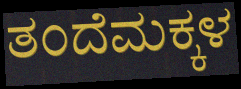
ತಂದೆಮಕ್ಕಳ